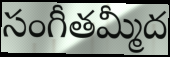
సంగీతమ్మీద